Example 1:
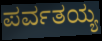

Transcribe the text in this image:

ಪರ್ವತಯ್ಯ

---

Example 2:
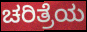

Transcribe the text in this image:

ಚರಿತ್ರೆಯ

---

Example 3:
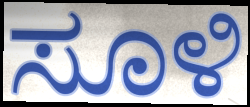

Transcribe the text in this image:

ಸೂಳಿ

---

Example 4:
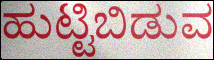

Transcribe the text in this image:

ಹುಟ್ಟಿಬಿಡುವ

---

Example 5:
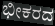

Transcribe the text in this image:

ಭೀಕರದ